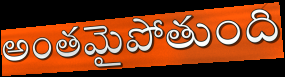
అంతమైపోతుంది